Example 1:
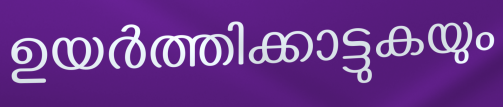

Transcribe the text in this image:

ഉയർത്തിക്കാട്ടുകയും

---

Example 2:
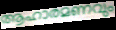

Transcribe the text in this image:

ആഹാരമണവും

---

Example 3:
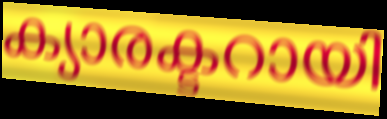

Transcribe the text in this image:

ക്യാരക്ടറായി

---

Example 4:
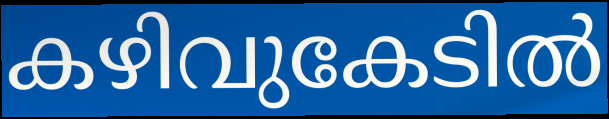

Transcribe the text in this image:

കഴിവുകേടിൽ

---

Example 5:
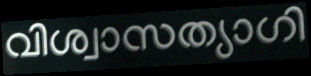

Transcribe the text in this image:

വിശ്വാസത്യാഗി